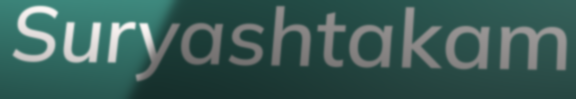
Suryashtakam